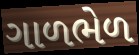
ગાળભેળ